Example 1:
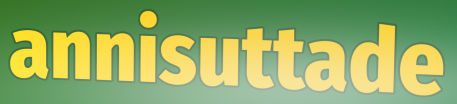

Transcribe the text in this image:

annisuttade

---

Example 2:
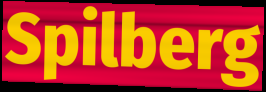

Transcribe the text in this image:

Spilberg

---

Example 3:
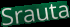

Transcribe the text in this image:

Srauta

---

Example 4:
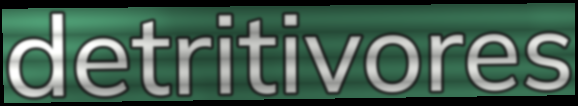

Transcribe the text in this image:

detritivores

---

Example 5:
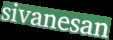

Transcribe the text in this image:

sivanesan